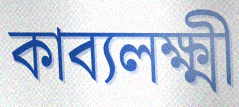
কাব্যলক্ষ্মী